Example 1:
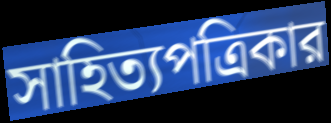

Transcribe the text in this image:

সাহিত্যপত্রিকার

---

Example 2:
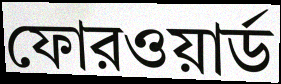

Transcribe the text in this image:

ফোরওয়ার্ড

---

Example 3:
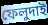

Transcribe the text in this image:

ফেলুদাই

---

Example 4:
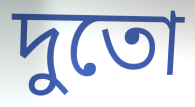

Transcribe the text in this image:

দুতো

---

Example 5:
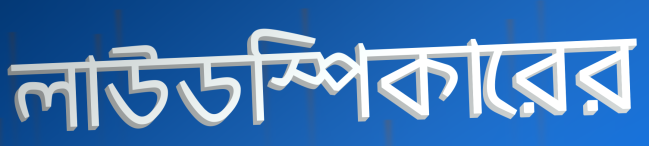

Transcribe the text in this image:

লাউডস্পিকারের